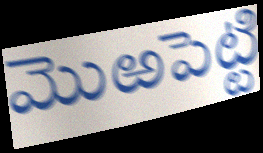
మొఱపెట్టి